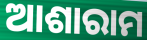
ଆଶାରାମ